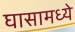
घासामध्ये